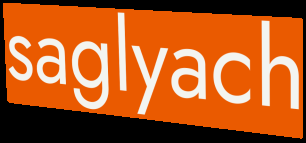
saglyach